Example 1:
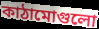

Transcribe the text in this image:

কাঠামোগুলো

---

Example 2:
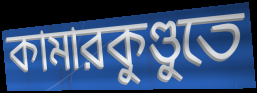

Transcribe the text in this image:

কামারকুণ্ডুতে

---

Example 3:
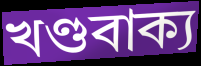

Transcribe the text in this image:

খণ্ডবাক্য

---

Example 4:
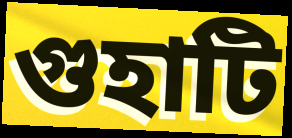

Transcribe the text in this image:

গুহাটি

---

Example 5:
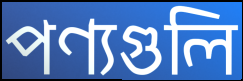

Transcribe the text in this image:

পণ্যগুলি